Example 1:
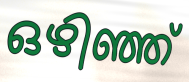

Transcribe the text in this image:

ഒഴിഞ്ഞ്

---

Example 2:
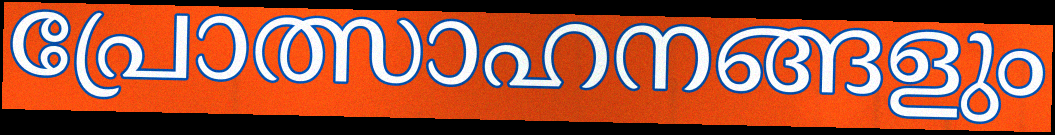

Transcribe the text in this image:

പ്രോത്സാഹനങ്ങളും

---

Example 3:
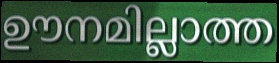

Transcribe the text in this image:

ഊനമില്ലാത്ത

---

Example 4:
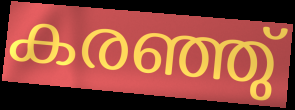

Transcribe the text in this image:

കരഞ്ഞു്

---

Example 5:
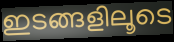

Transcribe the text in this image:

ഇടങ്ങളിലൂടെ